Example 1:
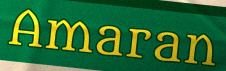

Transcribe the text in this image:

Amaran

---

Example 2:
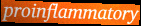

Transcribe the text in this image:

proinflammatory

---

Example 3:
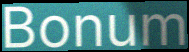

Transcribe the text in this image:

Bonum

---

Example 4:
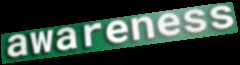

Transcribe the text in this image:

awareness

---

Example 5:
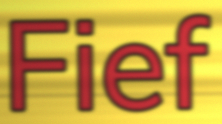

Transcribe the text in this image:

Fief